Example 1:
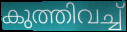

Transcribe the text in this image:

കുത്തിവച്ച്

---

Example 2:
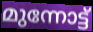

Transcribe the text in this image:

മുന്നോട്ട്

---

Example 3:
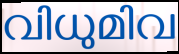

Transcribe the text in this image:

വിധുമിവ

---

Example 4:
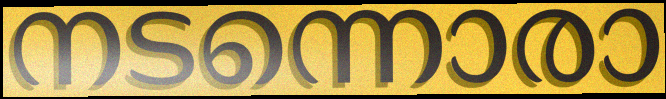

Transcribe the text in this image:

നടന്നൊരാ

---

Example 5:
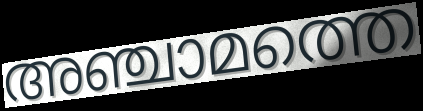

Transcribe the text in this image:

അഞ്ചാമത്തെ